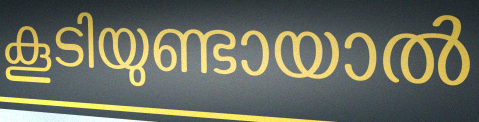
കൂടിയുണ്ടായാൽ